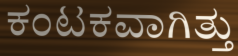
ಕಂಟಕವಾಗಿತ್ತು